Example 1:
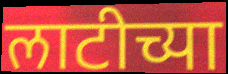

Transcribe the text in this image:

लाटीच्या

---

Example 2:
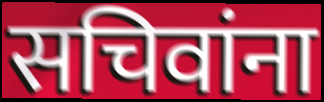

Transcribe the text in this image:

सचिवांना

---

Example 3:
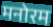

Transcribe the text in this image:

मनोरम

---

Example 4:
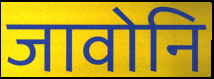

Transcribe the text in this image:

जावोनि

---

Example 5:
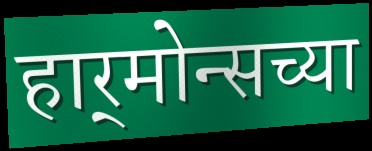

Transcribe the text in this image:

हार्मोन्सच्या